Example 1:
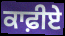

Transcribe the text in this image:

ਕਾਫ਼ੀਏ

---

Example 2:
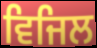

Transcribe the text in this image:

ਵਿਜਿਲ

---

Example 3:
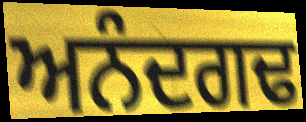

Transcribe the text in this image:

ਅਨੰਦਗਢ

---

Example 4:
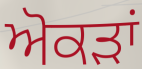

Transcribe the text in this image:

ਅੋਕੜਾਂ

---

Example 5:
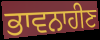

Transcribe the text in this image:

ਭਾਵਨਾਹੀਣ